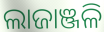
ଲାଜାଞ୍ଜଳି